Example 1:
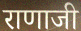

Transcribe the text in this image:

राणाजी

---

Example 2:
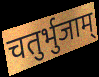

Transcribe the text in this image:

चतुर्भुजाम्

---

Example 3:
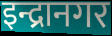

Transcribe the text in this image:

इन्द्रानगर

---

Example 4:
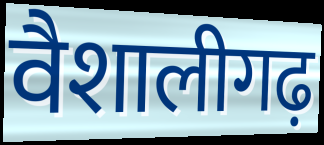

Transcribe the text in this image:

वैशालीगढ़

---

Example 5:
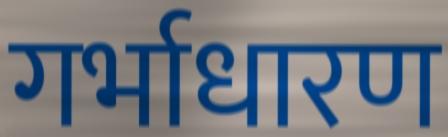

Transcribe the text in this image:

गर्भाधारण